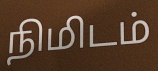
நிமிடம்